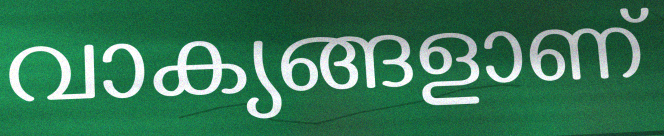
വാക്യങ്ങളാണ്